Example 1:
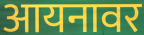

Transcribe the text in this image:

आयनावर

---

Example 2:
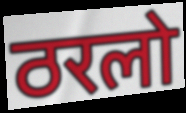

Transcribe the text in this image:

ठरलो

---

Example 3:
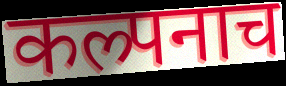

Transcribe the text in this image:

कल्पनाच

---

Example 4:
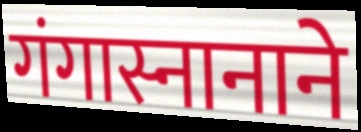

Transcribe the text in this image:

गंगास्नानाने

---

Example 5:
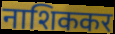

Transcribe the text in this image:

नाशिककर